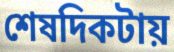
শেষদিকটায়